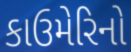
કાઉમેરિનો